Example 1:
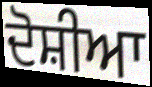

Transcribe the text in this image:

ਦੋਸ਼ੀਆ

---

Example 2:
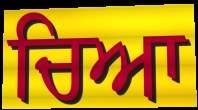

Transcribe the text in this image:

ਚਿਆ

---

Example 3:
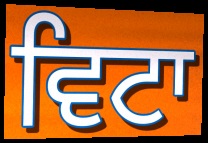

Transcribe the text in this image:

ਵਿਟਾ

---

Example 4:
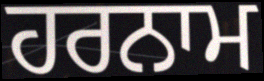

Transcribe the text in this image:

ਹਰਨਾਮ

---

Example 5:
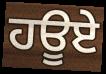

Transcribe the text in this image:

ਹਊਏ